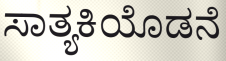
ಸಾತ್ಯಕಿಯೊಡನೆ